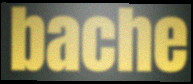
bache